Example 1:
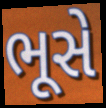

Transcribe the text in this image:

ભૂસે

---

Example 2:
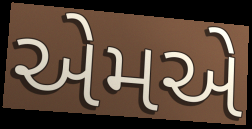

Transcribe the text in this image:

એમએ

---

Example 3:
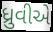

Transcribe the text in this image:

ધ્રુવીએ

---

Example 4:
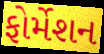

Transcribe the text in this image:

ફોર્મેશન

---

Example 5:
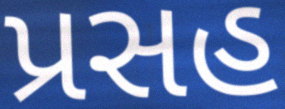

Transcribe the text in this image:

પ્રસહ